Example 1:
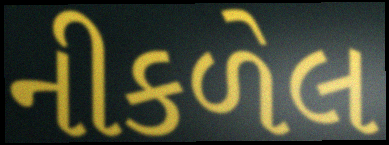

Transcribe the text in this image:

નીકળેલ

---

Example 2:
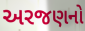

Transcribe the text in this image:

અરજણનો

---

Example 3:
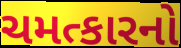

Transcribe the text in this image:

ચમત્કારનો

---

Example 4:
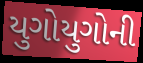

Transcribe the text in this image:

યુગોયુગોની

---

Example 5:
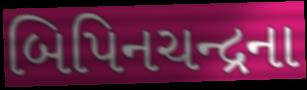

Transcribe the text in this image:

બિપિનચન્દ્રના